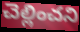
చెల్లించని